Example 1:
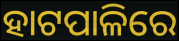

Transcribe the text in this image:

ହାଟପାଳିରେ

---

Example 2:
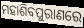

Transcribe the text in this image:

ମହାଶିବପୁରାଣରେ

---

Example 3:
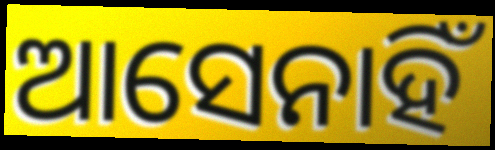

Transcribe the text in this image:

ଆସେନାହିଁ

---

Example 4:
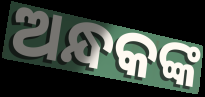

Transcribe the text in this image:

ଅନ୍ଧକଙ୍କ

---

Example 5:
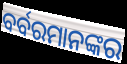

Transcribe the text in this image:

ବର୍ବରମାନଙ୍କର